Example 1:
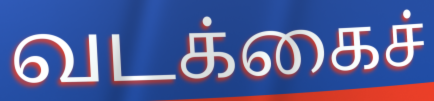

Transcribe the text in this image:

வடக்கைச்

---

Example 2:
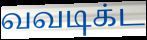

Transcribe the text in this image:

வவடிக்ட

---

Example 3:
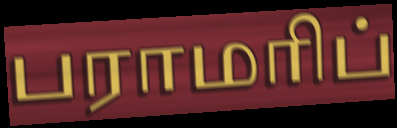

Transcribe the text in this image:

பராமரிப்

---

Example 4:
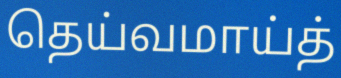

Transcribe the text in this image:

தெய்வமாய்த்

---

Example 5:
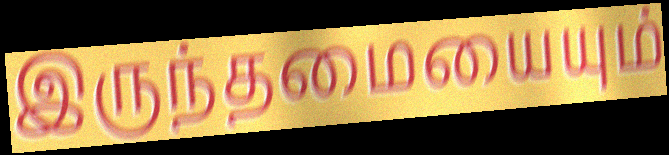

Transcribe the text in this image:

இருந்தமையையும்